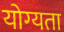
योग्‍यता